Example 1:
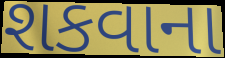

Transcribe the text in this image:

શકવાના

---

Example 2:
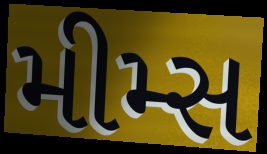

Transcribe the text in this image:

મીમ્સ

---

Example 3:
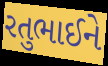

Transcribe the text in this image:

રતુભાઈને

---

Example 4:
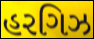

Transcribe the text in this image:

હરગિઝ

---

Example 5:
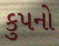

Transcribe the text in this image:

કુપનો